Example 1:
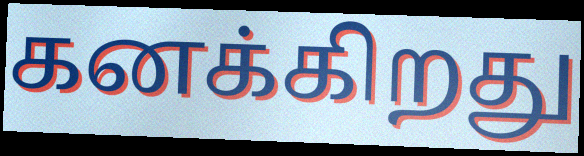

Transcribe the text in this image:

கனக்கிறது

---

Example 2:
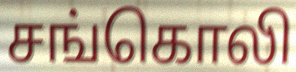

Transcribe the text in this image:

சங்கொலி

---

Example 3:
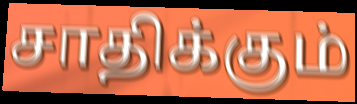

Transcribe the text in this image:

சாதிக்கும்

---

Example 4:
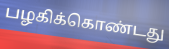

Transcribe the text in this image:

பழகிக்கொண்டது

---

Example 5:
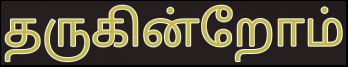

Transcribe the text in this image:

தருகின்றோம்